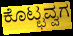
ಕೊಟ್ಟವ್ವಗ